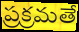
ప్రక్రమతే